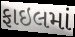
ફાઇલમાં